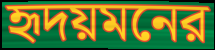
হৃদয়মনের